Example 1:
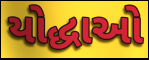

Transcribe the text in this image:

યોદ્ધાઓ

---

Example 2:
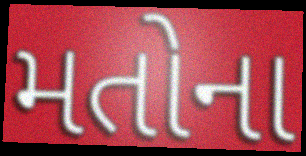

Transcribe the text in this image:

મતોના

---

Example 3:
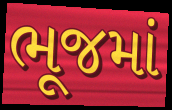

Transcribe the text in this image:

ભૂજમાં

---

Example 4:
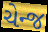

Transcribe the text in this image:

ચેન્જ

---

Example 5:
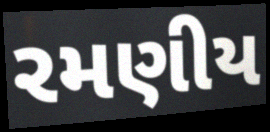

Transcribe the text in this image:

રમણીય